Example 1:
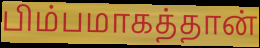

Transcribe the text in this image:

பிம்பமாகத்தான்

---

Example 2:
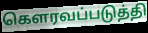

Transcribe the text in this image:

கெளரவப்படுத்தி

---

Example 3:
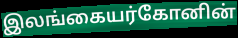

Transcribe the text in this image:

இலங்கையர்கோனின்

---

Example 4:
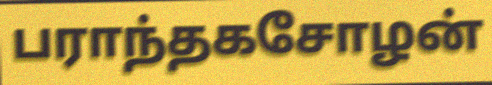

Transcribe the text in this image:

பராந்தகசோழன்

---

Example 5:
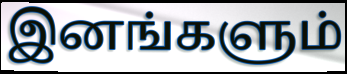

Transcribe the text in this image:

இனங்களும்